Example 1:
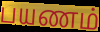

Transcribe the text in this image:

பயணம்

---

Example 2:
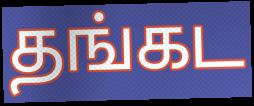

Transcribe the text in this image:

தங்கட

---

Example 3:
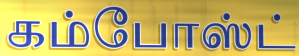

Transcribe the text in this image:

கம்போஸ்ட்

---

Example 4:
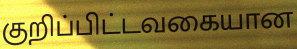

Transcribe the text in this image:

குறிப்பிட்டவகையான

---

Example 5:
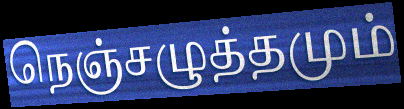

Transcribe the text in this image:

நெஞ்சழுத்தமும்